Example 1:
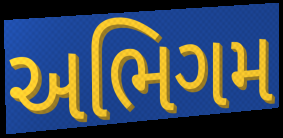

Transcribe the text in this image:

અભિગમ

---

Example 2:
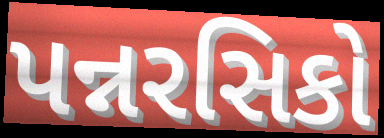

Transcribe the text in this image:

પન્નરસિકો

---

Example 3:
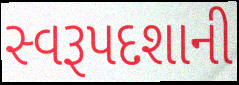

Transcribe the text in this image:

સ્વરૂપદશાની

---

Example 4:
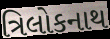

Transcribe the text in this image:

ત્રિલોકનાથ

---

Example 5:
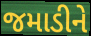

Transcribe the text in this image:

જમાડીને